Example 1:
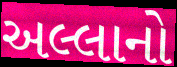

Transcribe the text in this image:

અલ્લાનો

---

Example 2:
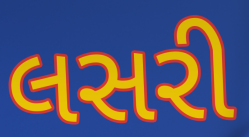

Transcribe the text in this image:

લસરી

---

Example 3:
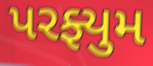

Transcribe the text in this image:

પરફ્યુમ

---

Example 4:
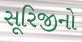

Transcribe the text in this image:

સૂરિજીનો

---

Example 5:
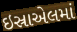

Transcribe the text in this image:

ઇસ્રાએલમાં